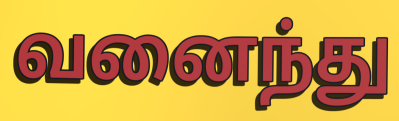
வனைந்து